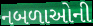
નબળાઓની